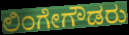
ಲಿಂಗೇಗೌಡರು